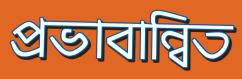
প্রভাবান্বিত